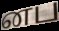
னப